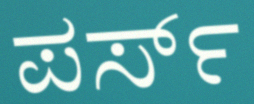
ಪರ್ಸ್